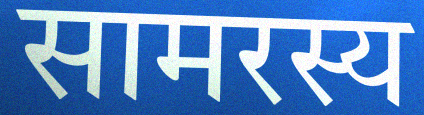
सामरस्य